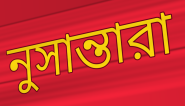
নুসান্তারা